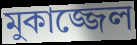
মুকাজ্জেল